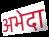
अभेदा